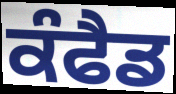
ਕੰਫੈਡ